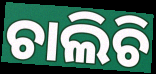
ଚାଲିଚି